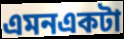
এমনএকটা